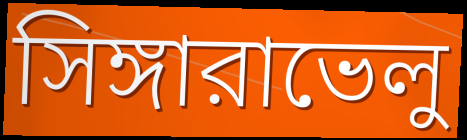
সিঙ্গারাভেলু